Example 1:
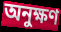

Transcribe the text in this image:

অনুক্ষণ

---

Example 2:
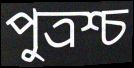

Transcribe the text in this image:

পুত্রশ্চ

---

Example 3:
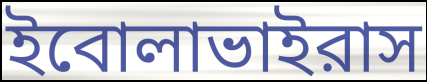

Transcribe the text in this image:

ইবোলাভাইরাস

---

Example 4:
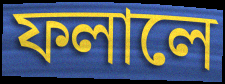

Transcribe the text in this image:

ফলালে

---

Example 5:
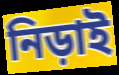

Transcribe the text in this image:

নিড়াই